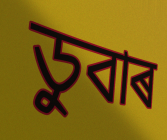
ডুবাৰ